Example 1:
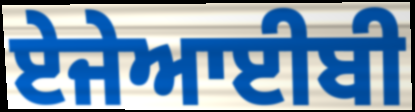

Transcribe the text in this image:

ਏਜੇਆਈਬੀ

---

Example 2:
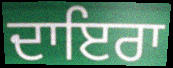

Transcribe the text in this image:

ਦਾਇਰਾ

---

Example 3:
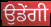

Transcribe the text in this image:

ਉਡੇਂਗੀ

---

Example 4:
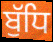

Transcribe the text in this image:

ਬੁੱਧਿ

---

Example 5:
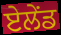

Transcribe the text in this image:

ਏਲੇਂਡ